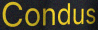
Condus